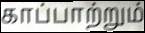
காப்பாற்றும்